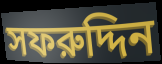
সফরুদ্দিন